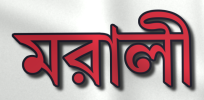
মরালী